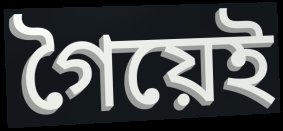
গৈয়েই